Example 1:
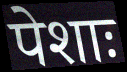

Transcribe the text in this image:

पेशाः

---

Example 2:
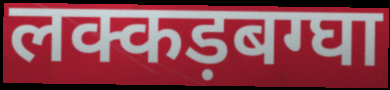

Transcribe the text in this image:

लक्कड़बग्घा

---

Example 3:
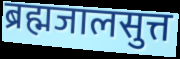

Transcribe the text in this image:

ब्रह्मजालसुत्त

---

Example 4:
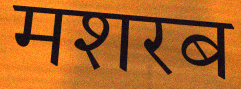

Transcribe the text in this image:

मशरब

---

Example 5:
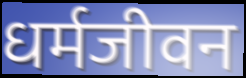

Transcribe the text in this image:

धर्मजीवन